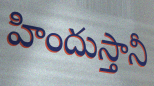
హిందుస్తానీ